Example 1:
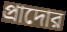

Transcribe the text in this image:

প্রাদোর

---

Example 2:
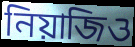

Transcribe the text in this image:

নিয়াজিও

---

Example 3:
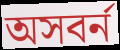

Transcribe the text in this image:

অসবর্ন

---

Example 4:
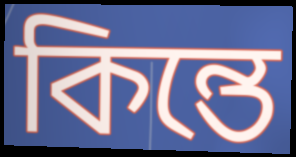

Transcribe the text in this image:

কিন্তে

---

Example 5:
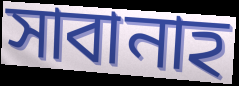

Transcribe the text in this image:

সাবানাহ